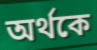
অর্থকে